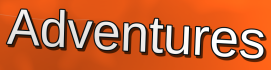
Adventures